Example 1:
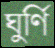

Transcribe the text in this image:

ঘুর্ণি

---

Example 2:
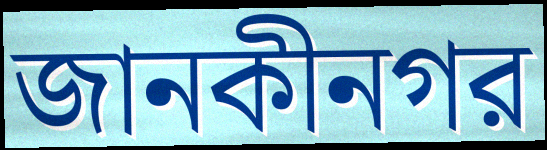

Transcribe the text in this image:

জানকীনগর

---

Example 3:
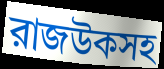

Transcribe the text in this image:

রাজউকসহ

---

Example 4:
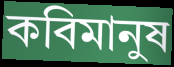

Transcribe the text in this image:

কবিমানুষ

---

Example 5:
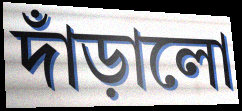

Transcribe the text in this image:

দাঁড়ালো